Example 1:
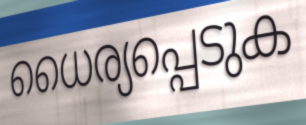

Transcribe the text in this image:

ധൈര്യപ്പെടുക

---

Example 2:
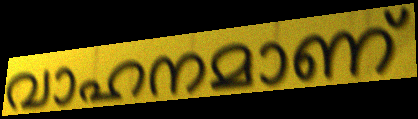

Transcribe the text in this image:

വാഹനമാണ്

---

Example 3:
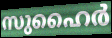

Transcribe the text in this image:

സുഹൈർ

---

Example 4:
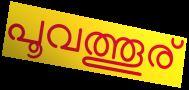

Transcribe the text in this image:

പൂവത്തൂര്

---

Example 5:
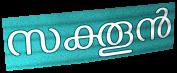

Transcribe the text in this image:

സക്തൂൻ